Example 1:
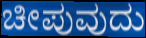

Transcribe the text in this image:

ಚೀಪುವುದು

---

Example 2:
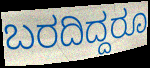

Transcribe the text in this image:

ಬರದಿದ್ದರೂ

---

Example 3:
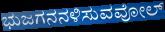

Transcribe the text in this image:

ಭುಜಗನನಳಿಸುವವೋಲ್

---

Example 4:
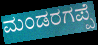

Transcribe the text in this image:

ಮಂಡರಗಪ್ಪೆ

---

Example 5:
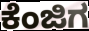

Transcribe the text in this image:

ಕೆಂಜಿಗ